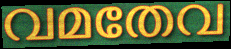
വമതേവ